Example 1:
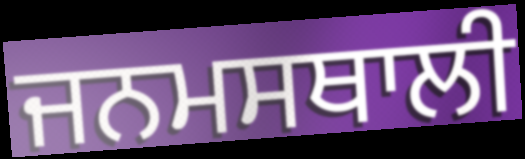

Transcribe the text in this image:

ਜਨਮਸਥਾਲੀ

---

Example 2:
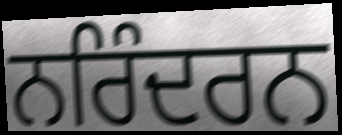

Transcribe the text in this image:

ਨਰਿੰਦਰਨ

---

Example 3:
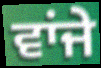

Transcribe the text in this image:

ਵਾਂਜੇ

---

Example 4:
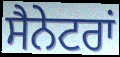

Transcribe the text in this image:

ਸੈਨੇਟਰਾਂ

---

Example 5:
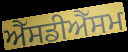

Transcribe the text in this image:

ਐੱਸਡੀਐੱਸਮ